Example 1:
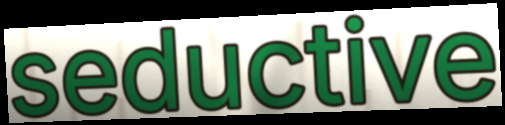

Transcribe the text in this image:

seductive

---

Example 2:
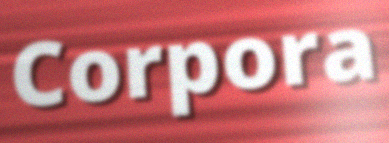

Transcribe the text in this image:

Corpora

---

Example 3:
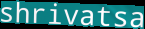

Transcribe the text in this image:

shrivatsa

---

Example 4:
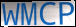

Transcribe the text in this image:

WMCP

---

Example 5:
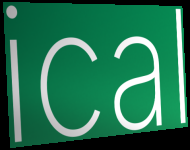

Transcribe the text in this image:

ical